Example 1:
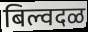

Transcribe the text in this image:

बिल्वदळ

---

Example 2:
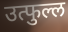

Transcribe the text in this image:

उत्फुल्ल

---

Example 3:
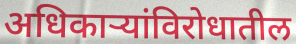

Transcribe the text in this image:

अधिकाऱ्यांविरोधातील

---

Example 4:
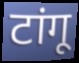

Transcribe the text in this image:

टांगू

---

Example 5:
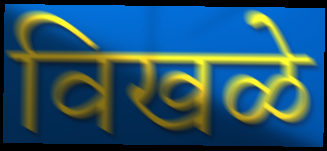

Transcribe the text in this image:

विखळे